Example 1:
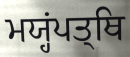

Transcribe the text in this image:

ਮਯ੍ਹਂਪਤ੍ਥਿ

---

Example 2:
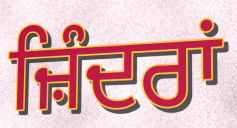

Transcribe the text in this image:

ਜ਼ਿੰਦਰਾਂ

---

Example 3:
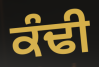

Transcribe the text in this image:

ਕੰਢੀ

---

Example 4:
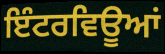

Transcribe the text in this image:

ਇੰਟਰਵਿਊਆਂ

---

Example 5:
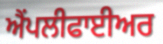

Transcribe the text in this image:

ਐੰਪਲੀਫਾਈਅਰ